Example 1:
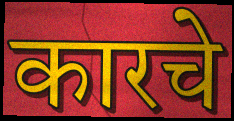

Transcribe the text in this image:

कारचे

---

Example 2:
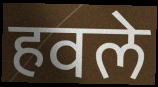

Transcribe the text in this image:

हवले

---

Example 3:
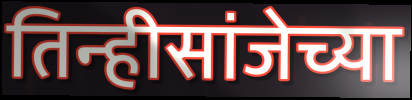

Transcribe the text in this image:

तिन्हीसांजेच्या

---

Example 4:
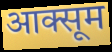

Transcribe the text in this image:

आक्सूम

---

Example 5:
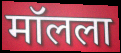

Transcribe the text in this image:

मॉलला